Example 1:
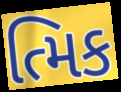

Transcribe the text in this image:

ત્મિક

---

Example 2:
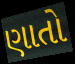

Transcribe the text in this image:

ણાતો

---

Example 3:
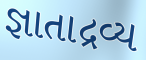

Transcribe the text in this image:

જ્ઞાતાદ્રવ્ય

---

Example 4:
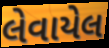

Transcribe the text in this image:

લેવાયેલ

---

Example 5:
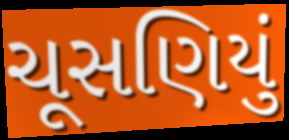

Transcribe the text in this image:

ચૂસણિયું